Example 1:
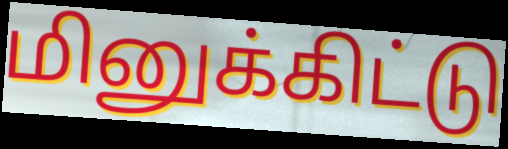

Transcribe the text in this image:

மினுக்கிட்டு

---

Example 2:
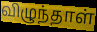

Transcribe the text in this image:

விழுந்தாள்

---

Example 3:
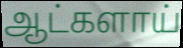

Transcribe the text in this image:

ஆட்களாய்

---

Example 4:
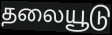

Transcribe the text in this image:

தலையூடு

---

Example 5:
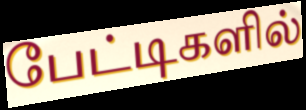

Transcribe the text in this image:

பேட்டிகளில்